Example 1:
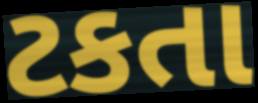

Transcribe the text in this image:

ટકતા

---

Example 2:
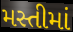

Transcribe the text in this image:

મસ્તીમાં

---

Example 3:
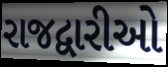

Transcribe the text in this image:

રાજદ્વારીઓ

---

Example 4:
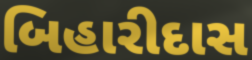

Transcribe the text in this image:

બિહારીદાસ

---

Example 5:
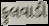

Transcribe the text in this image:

ફુલવાડી